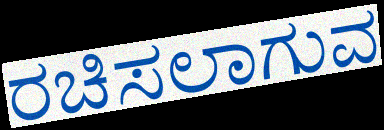
ರಚಿಸಲಾಗುವ